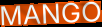
MANGO